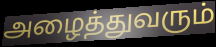
அழைத்துவரும்